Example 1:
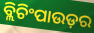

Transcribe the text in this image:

ବ୍ଲିଚିଂପାଉଡ଼ର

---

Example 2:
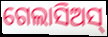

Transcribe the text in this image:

ଗେଲାସିଅସ୍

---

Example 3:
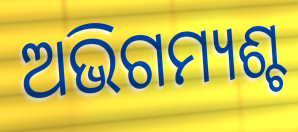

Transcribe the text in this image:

ଅଭିଗମ୍ୟଶ୍ଚ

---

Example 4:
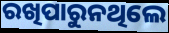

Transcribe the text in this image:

ରଖିପାରୁନଥିଲେ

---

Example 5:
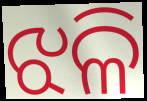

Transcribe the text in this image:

ଝଳି